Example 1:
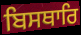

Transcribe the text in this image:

ਬਿਸਥਾਰਿ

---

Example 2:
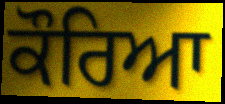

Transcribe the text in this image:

ਕੌਰਿਆ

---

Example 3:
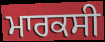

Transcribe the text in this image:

ਮਾਰਕਸੀ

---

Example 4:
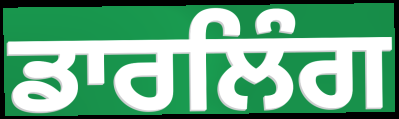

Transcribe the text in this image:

ਡਾਰਲਿੰਗ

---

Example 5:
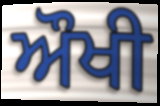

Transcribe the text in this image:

ਔਖੀ